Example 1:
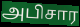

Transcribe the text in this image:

அபிசார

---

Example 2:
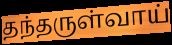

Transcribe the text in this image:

தந்தருள்வாய்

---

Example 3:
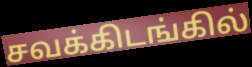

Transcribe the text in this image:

சவக்கிடங்கில்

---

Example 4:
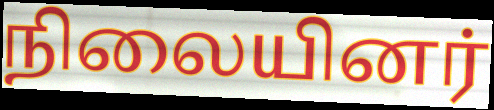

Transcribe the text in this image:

நிலையினர்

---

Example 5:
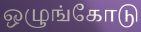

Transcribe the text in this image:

ஒழுங்கோடு